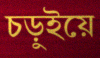
চড়ুইয়ে